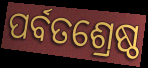
ପର୍ବତଶ୍ରେଷ୍ଠ